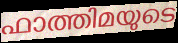
ഫാത്തിമയുടെ